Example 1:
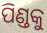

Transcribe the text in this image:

ପିଣ୍ଡକୁ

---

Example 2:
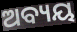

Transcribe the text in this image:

ଅବ୍ୟୟ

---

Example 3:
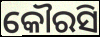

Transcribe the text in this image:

କୌରସି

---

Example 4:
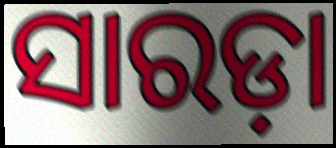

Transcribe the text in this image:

ସାରଡ଼ା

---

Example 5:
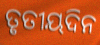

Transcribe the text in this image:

ତୃତୀୟଦିନ